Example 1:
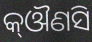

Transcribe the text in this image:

କ୍ଔଣସି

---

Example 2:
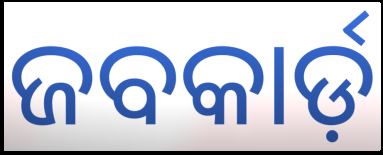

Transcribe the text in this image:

ଜବକାର୍ଡ଼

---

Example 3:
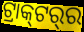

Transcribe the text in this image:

ଟ୍ରାକ୍‍ଟର୍‍ର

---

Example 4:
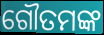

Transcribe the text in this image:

ଗୌତମଙ୍କ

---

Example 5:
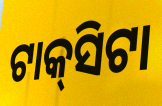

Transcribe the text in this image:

ଟାକ୍‌ସିଟା